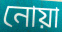
নোয়া